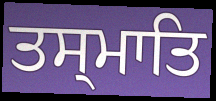
ਤਸ੍ਮਾਤਿ